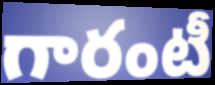
గారంటీ